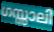
ഗസ്സാലി